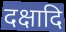
दक्षादि